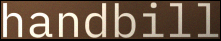
handbill